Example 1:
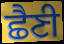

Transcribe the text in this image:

ਛੈਣੀ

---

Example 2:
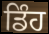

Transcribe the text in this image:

ਡਿੰਹ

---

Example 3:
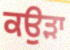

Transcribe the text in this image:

ਕਉੜਾ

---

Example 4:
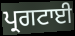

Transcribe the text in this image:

ਪ੍ਰਗਟਾਈ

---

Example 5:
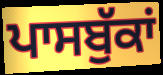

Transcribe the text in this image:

ਪਾਸਬੁੱਕਾਂ